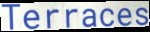
Terraces